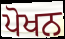
ਪੋਖਨ